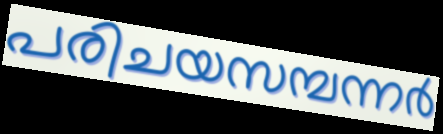
പരിചയസമ്പന്നർ